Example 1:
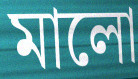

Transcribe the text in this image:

মালো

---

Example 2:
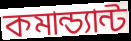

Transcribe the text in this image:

কমান্ড্যান্ট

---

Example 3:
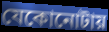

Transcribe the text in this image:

যেকোনোটায়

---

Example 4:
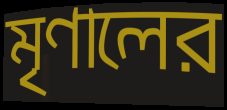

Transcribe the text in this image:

মৃণালের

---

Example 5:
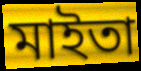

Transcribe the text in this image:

মাইতা